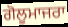
ਗੋਲੂਮਾਜਰਾ